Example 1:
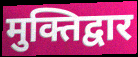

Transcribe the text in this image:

मुक्तिद्वार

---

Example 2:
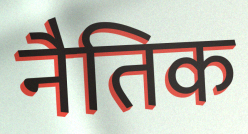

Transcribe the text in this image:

नैतिक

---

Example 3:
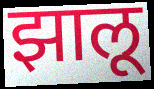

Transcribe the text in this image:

झालू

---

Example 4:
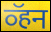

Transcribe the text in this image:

व्हॅन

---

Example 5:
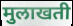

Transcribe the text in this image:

मुलाखती